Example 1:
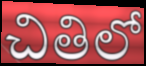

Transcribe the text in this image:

చితిలో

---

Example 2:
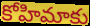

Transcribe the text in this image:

కోహిమాకు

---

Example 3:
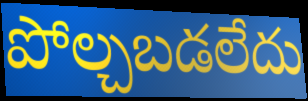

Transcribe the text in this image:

పోల్చబడలేదు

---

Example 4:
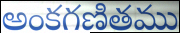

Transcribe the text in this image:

అంకగణితము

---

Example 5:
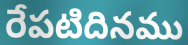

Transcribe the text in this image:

రేపటిదినము